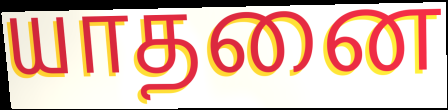
யாதனை